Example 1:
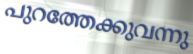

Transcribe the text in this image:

പുറത്തേക്കുവന്നു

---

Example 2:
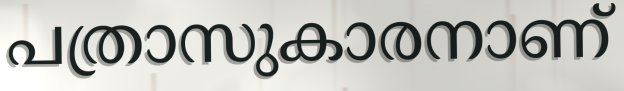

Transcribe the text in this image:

പത്രാസുകാരനാണ്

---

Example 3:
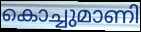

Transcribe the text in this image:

കൊച്ചുമാണി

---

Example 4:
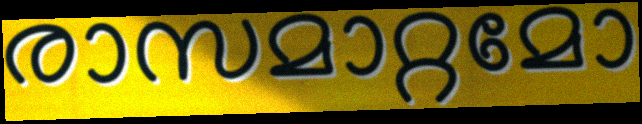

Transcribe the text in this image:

രാസമാറ്റമോ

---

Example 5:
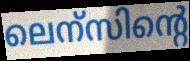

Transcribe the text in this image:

ലെന്സിന്റെ